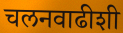
चलनवाढीशी